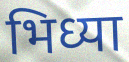
भिध्या